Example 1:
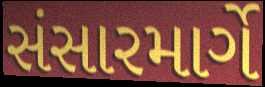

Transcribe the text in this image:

સંસારમાર્ગે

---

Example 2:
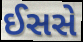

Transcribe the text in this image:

ઈસસે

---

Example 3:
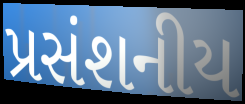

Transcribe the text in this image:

પ્રસંશનીય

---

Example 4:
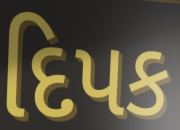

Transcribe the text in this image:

દિપક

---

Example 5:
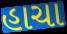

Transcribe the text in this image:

હાચા